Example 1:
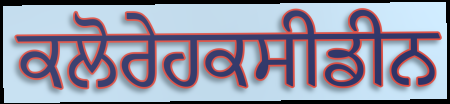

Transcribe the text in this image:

ਕਲੋਰੇਹਕਸੀਡੀਨ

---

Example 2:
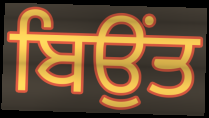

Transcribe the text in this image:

ਬਿਉਂਤ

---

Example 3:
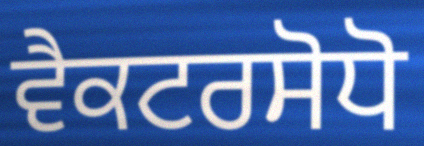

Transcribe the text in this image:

ਵੈਕਟਰਸੋਧੋ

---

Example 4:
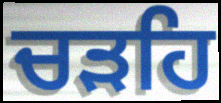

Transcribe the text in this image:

ਚੜਹਿ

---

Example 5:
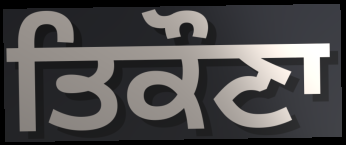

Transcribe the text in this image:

ਤਿਕੌਣਾ